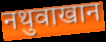
नथुवाखान